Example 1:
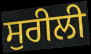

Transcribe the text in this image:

ਸੁਰੀਲੀ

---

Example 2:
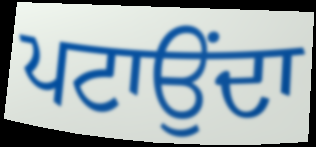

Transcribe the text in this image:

ਪਟਾਉਂਦਾ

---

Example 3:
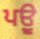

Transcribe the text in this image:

ਪਉੂ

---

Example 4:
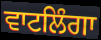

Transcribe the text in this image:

ਵਾਟਲਿੰਗਾ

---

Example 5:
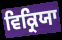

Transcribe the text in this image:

ਵਿਕ੍ਰਿਯਾ